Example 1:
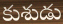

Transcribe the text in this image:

కుశుడు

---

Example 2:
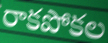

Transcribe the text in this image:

రాకపోకల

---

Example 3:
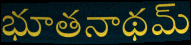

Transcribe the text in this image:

భూతనాథమ్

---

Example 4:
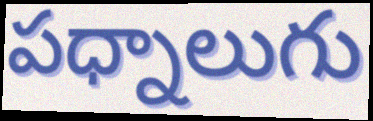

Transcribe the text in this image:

పధ్నాలుగు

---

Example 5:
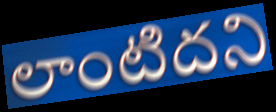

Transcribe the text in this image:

లాంటిదని